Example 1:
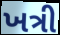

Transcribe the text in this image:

ખત્રી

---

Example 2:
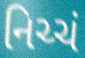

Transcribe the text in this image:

નિચ્ચં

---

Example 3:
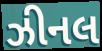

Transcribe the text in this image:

ઝીનલ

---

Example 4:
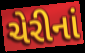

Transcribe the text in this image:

ચેરીનાં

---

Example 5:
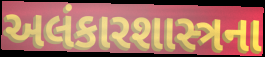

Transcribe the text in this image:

અલંકારશાસ્ત્રના